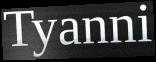
Tyanni